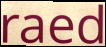
raed